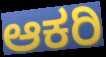
ಆಕರಿ